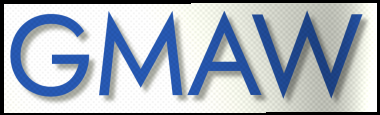
GMAW